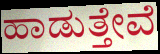
ಹಾಡುತ್ತೇವೆ